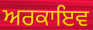
ਅਰਕਾਇਵ